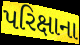
પરિક્ષાના